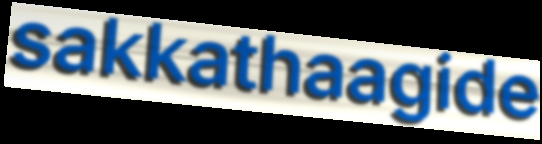
sakkathaagide